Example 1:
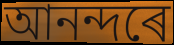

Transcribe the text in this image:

আনন্দৰে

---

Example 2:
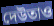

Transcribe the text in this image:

দেউতাও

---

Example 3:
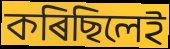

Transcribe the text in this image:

কৰিছিলেই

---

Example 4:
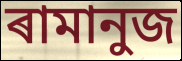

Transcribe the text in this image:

ৰামানুজ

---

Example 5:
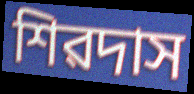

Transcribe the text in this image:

শিৱদাস